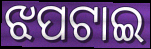
ଝପଟାଇ